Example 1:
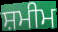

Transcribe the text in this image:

ਸ਼ਮੀਮ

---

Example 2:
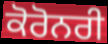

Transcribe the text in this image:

ਕੋਰੋਨਰੀ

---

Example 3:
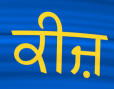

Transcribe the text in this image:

ਕੀਜ਼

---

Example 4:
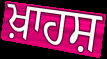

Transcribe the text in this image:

ਖ਼ਾਹਸ਼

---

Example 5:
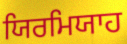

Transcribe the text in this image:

ਯਿਰਮਿਯਾਹ